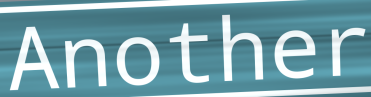
Another